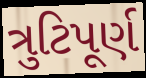
ત્રુટિપૂર્ણ